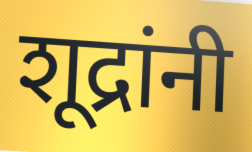
शूद्रांनी